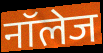
नॉलेज